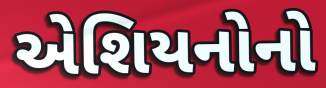
એશિયનોનો